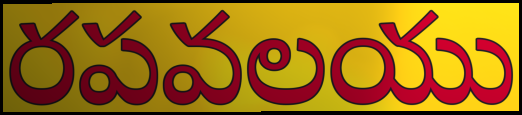
రపవలయు